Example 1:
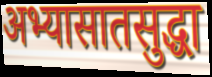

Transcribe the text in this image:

अभ्यासातसुद्धा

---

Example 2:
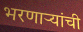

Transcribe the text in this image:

भरणाऱ्यांची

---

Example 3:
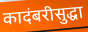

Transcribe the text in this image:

कादंबरीसुद्धा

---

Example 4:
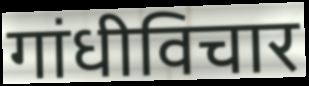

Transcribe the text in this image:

गांधीविचार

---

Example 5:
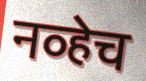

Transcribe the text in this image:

नव्हेच